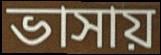
ভাসায়